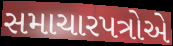
સમાચારપત્રોએ